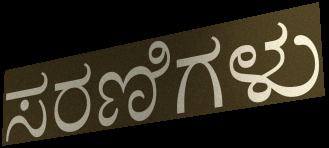
ಸರಣಿಗಳು